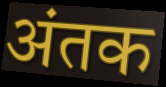
अंतक